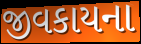
જીવકાયના